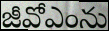
జీవోఎంను